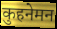
कुहनेमन